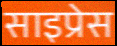
साइप्रेस